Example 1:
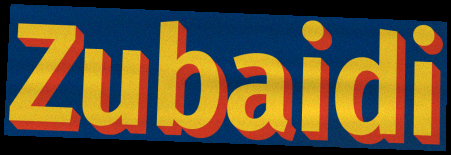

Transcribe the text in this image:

Zubaidi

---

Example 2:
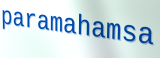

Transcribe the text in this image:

paramahamsa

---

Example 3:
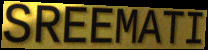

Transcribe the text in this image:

SREEMATI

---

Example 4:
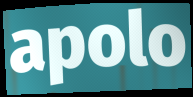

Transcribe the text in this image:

apolo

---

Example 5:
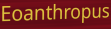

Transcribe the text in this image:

Eoanthropus